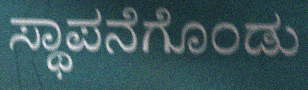
ಸ್ಥಾಪನೆಗೊಂಡು